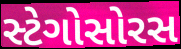
સ્ટેગોસોરસ